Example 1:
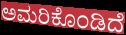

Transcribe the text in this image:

ಅಮರಿಕೊಂಡಿದೆ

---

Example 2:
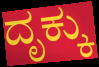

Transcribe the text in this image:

ದೃಕ್ಕು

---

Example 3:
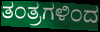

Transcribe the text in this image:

ತಂತ್ರಗಳಿಂದ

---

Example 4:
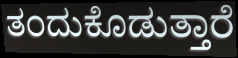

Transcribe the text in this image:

ತಂದುಕೊಡುತ್ತಾರೆ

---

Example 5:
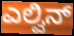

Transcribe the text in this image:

ಎಲ್ವಿನ್